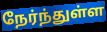
நேர்ந்துள்ள